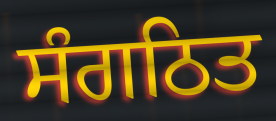
ਸੰਗਠਿਤ